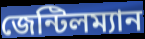
জেন্টিলম্যান